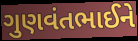
ગુણવંતભાઈને